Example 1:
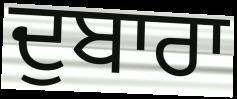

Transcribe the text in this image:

ਦੁਬਾਰਾ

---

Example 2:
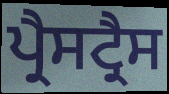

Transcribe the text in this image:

ਪ੍ਰੈਸਟ੍ਰੈਸ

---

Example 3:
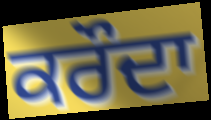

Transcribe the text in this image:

ਕਰੌਦਾ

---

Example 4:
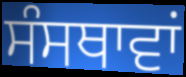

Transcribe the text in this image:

ਸੰਸਥਾਵਾਂ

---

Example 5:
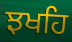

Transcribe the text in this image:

ਝਖਹਿ